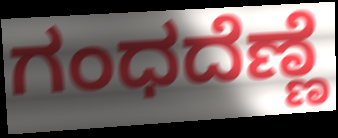
ಗಂಧದೆಣ್ಣೆ